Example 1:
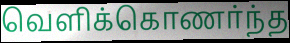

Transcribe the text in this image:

வெளிக்கொணர்ந்த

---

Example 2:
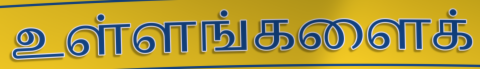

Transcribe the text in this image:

உள்ளங்களைக்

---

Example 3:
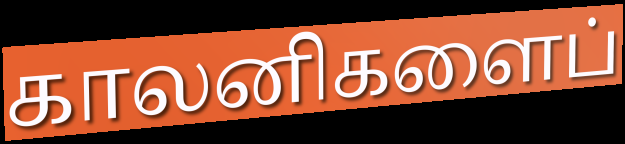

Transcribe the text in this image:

காலனிகளைப்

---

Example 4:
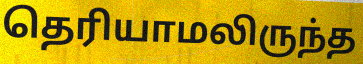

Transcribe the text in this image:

தெரியாமலிருந்த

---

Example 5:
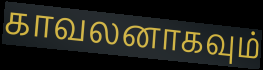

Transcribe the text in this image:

காவலனாகவும்